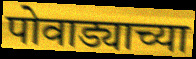
पोवाड्याच्या